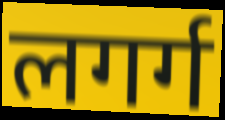
लगर्ग